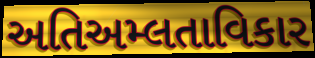
અતિઅમ્લતાવિકાર